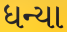
ધન્યા